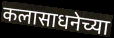
कलासाधनेच्या